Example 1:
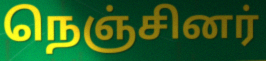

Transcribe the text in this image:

நெஞ்சினர்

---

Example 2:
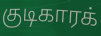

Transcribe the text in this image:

குடிகாரக்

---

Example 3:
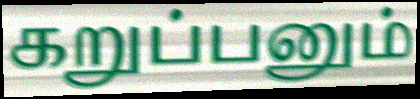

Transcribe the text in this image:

கறுப்பனும்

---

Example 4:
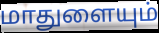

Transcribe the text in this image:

மாதுளையும்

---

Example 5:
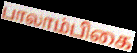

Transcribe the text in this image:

பாலாம்பிகை